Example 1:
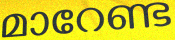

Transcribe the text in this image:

മാറേണ്ട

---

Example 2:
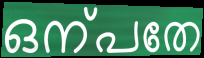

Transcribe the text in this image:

ഒന്പതേ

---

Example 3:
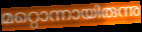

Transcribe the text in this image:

മറ്റൊന്നായിരുന്നു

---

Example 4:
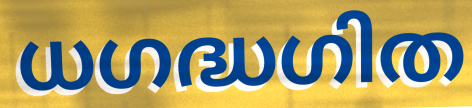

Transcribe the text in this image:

ധഗദ്ധഗിത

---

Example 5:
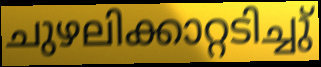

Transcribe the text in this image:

ചുഴലിക്കാറ്റടിച്ചു്